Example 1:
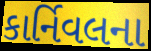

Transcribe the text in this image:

કાર્નિવલના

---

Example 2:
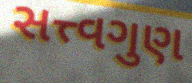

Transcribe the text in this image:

સત્ત્વગુણ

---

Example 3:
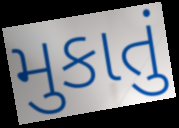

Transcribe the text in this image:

મુકાતું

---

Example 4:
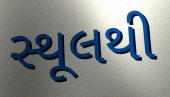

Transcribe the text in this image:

સ્થૂલથી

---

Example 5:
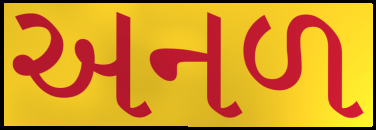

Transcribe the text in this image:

અનળ